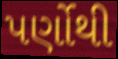
પર્ણોથી